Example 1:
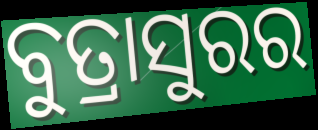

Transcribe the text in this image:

ବୁତ୍ରାସୁରର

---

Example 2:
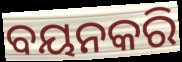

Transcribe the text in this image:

ବୟନକରି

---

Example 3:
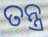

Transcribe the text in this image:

ତନ୍ତ୍ର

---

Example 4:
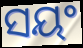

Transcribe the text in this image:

ସୟଂ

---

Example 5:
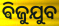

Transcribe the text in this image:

ଵିଜୁଯୁବ